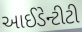
આઈડેન્ટીટી